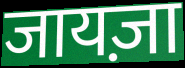
जायज़ा